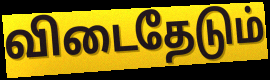
விடைதேடும்